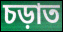
চড়াত